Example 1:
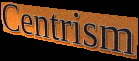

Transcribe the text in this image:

Centrism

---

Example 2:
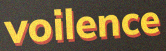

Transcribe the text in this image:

voilence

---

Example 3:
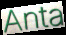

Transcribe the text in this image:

Anta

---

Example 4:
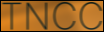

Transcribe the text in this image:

TNCC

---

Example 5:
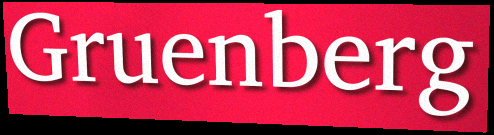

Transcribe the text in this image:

Gruenberg